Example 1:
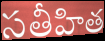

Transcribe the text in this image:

సతీహిత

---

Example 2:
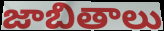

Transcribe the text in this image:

జాబితాలు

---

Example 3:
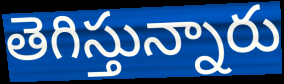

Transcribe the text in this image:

తెగిస్తున్నారు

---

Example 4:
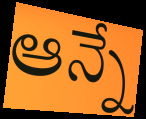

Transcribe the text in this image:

ఆన్నే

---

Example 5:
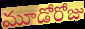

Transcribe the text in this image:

మూడోరోజు